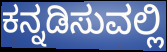
ಕನ್ನಡಿಸುವಲ್ಲಿ